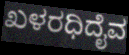
ಖಳರಧಿದೈವ